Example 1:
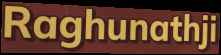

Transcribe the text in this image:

Raghunathji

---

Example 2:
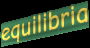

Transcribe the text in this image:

equilibria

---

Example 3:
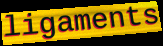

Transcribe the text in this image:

ligaments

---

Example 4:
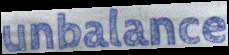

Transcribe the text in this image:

unbalance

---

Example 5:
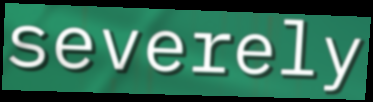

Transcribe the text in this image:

severely